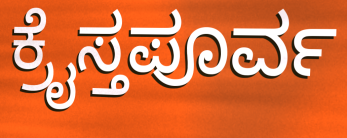
ಕ್ರೈಸ್ತಪೂರ್ವ